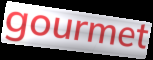
gourmet